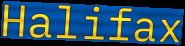
Halifax